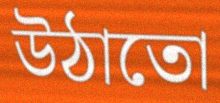
উঠাতো